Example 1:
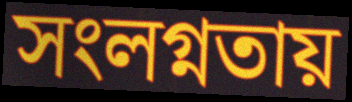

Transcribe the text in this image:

সংলগ্নতায়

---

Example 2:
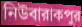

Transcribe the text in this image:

নিউবারাকপুর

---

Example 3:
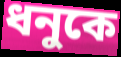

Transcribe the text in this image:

ধনুকে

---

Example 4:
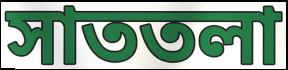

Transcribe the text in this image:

সাততলা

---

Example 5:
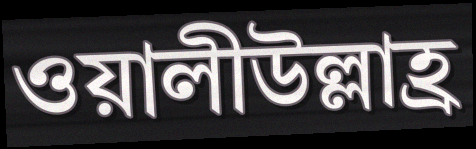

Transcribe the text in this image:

ওয়ালীউল্লাহ্র